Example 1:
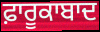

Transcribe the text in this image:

ਫ਼ਾਰੂਕਾਬਾਦ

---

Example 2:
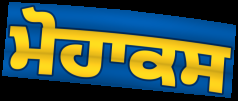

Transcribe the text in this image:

ਮੋਹਾਕਸ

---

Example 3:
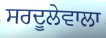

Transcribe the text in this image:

ਸਰਦੂਲੇਵਾਲਾ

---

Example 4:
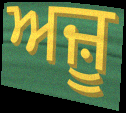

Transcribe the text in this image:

ਅਜ਼ੂ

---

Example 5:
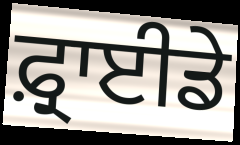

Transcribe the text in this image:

ਫ਼੍ਰਾਈਡੇ